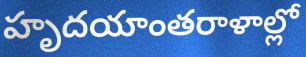
హృదయాంతరాళాల్లో